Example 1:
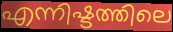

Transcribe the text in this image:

എന്നിഷ്ടത്തിലെ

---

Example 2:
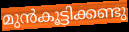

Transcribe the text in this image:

മുൻകൂട്ടിക്കണ്ടു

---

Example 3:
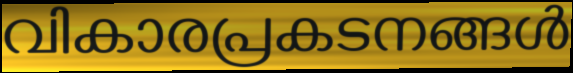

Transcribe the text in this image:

വികാരപ്രകടനങ്ങൾ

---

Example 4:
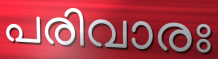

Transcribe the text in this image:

പരിവാരഃ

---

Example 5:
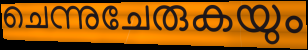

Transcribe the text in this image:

ചെന്നുചേരുകയും